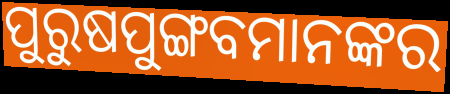
ପୁରୁଷପୁଙ୍ଗବମାନଙ୍କର